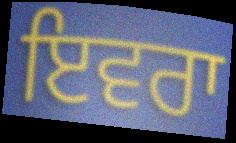
ਇਵਰਾ